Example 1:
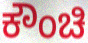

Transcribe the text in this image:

ಕೌಂಚಿ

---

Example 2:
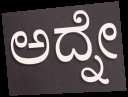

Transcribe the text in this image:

ಅದ್ನೇ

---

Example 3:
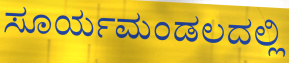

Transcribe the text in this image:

ಸೂರ್ಯಮಂಡಲದಲ್ಲಿ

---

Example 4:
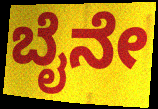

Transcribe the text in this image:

ಬೈನೇ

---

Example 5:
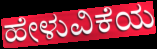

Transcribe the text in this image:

ಹೇಳುವಿಕೆಯ